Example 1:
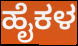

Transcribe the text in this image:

ಹೈಕಳ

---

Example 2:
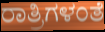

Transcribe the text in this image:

ರಾತ್ರಿಗಳಂತೆ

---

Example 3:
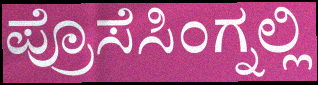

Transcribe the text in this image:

ಪ್ರೊಸೆಸಿಂಗ್ನಲ್ಲಿ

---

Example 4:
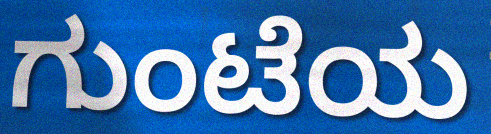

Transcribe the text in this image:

ಗುಂಟೆಯ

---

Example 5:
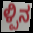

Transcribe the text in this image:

ಳ್ಪಿನ